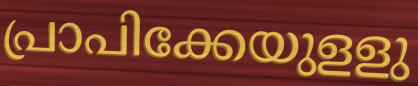
പ്രാപിക്കേയുളളു